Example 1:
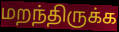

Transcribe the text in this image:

மறந்திருக்க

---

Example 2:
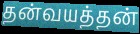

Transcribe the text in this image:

தன்வயத்தன்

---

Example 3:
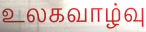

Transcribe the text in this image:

உலகவாழ்வு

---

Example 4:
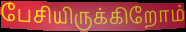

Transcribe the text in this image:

பேசியிருக்கிறோம்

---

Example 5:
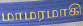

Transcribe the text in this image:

மாமரமாகி